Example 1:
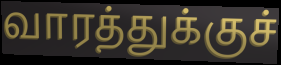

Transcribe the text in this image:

வாரத்துக்குச்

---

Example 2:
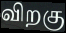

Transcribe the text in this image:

விறகு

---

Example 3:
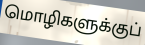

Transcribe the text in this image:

மொழிகளுக்குப்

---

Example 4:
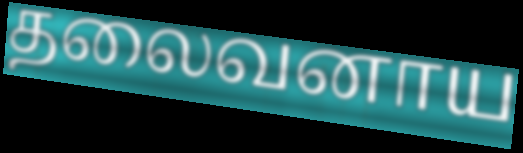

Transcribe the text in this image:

தலைவனாய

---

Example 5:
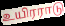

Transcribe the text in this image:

உயிரராடு